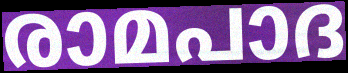
രാമപാദ